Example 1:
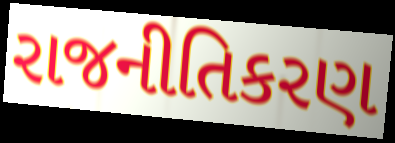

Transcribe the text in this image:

રાજનીતિકરણ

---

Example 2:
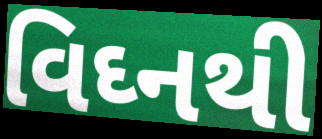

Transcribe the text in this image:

વિઘ્નથી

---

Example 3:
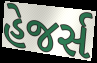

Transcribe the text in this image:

હેજર્સ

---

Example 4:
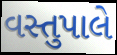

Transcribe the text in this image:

વસ્તુપાલે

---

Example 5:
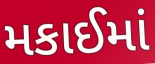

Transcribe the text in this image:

મકાઈમાં